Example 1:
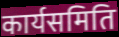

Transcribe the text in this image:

कार्यसमिति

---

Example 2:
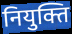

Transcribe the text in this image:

नियुक्‍ति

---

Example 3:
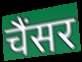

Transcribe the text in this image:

चैंसर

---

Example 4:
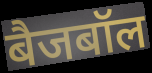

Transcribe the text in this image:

बैजबॉल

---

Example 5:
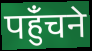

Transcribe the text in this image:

पहुंँचने